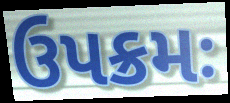
ઉપક્રમઃ